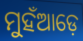
ମୁହଁଆଡ଼େ